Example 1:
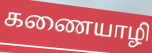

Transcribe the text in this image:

கணையாழி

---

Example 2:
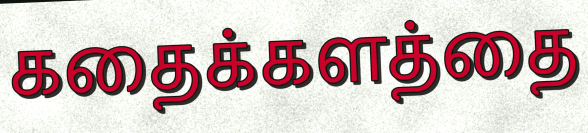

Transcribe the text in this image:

கதைக்களத்தை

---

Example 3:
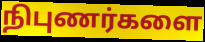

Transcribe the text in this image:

நிபுணர்களை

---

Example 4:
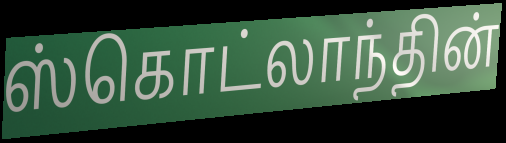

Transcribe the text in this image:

ஸ்கொட்லாந்தின்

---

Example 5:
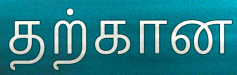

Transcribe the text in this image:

தற்கான